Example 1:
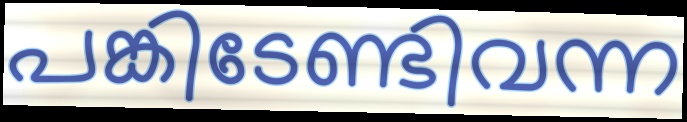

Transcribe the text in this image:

പങ്കിടേണ്ടിവന്ന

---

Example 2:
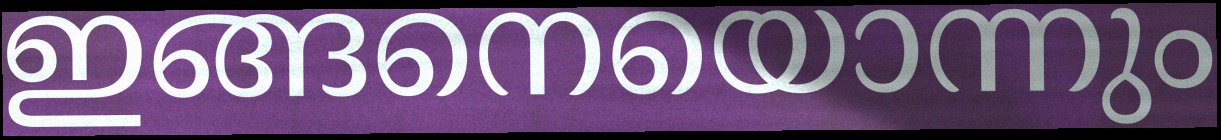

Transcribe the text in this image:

ഇങ്ങനെയൊന്നും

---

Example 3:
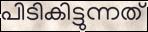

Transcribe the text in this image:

പിടികിട്ടുന്നത്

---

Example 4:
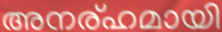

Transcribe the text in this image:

അനര്ഹമായി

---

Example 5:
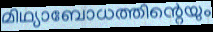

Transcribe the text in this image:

മിഥ്യാബോധത്തിന്റെയും